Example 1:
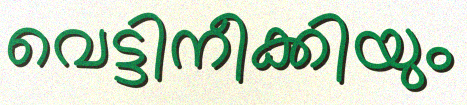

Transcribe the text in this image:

വെട്ടിനീക്കിയും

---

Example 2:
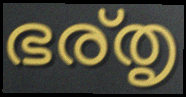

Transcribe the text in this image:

ഭര്തൃ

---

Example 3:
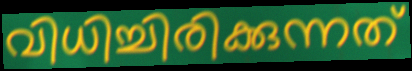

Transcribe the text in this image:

വിധിച്ചിരിക്കുന്നത്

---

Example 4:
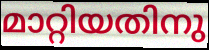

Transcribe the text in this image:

മാറ്റിയതിനു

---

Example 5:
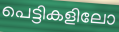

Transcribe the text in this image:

പെട്ടികളിലോ